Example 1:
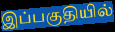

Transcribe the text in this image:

இப்பகுதியில்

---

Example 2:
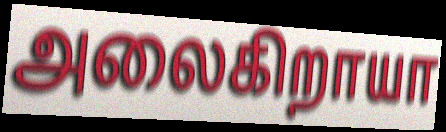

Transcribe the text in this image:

அலைகிறாயா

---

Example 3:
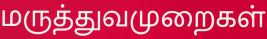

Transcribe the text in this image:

மருத்துவமுறைகள்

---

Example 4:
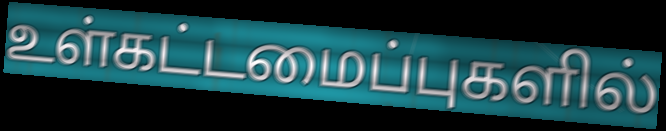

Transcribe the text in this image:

உள்கட்டமைப்புகளில்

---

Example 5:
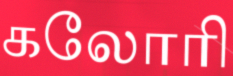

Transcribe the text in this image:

கலோரி